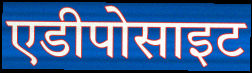
एडीपोसाइट